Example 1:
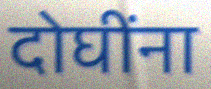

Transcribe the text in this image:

दोघींना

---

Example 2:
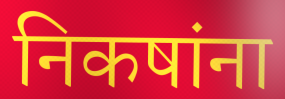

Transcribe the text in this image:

निकषांना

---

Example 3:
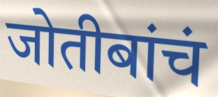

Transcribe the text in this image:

जोतीबांचं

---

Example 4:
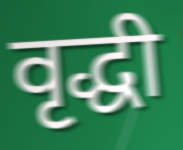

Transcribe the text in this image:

वृद्धी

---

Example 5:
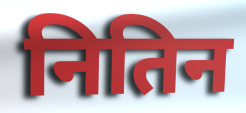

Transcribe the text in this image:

नितिन